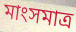
মাংসমাত্র